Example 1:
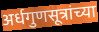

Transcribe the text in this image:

अर्धगुणसूत्रांच्या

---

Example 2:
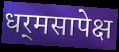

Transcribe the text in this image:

धर्मसापेक्ष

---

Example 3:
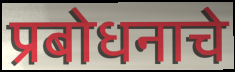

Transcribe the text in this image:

प्रबोधनाचे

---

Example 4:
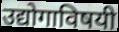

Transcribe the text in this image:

उद्योगाविषयी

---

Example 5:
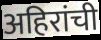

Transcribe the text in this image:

अहिरांची